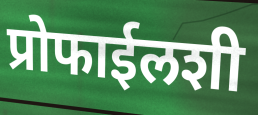
प्रोफाईलशी